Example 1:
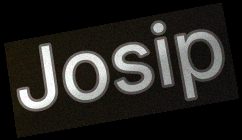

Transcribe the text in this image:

Josip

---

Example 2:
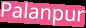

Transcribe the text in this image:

Palanpur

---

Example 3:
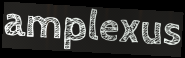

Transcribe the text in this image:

amplexus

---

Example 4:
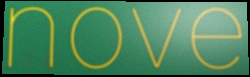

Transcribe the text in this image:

nove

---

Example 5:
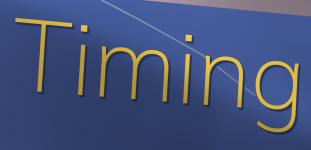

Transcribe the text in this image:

Timing